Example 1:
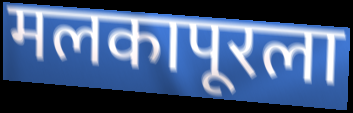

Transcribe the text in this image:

मलकापूरला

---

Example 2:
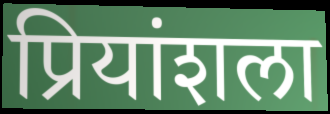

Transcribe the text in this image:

प्रियांशला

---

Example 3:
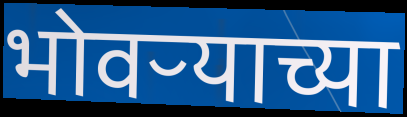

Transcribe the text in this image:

भोवऱ्याच्या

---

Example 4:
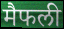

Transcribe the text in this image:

मैफली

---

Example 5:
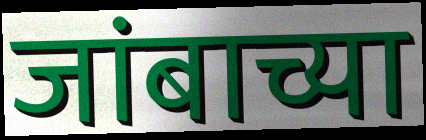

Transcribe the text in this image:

जांबाच्या